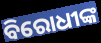
ବିରୋଧୀଙ୍କ